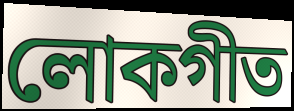
লোকগীত